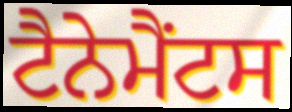
ਟੈਨੇਮੈਂਟਸ